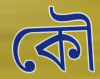
কৌ